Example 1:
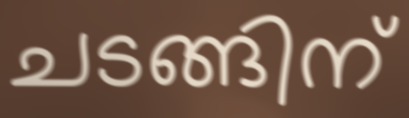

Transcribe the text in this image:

ചടങ്ങിന്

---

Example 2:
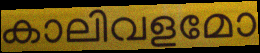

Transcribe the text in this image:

കാലിവളമോ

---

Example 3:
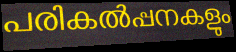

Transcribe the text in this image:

പരികൽപ്പനകളും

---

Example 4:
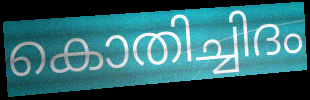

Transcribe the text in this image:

കൊതിച്ചിദം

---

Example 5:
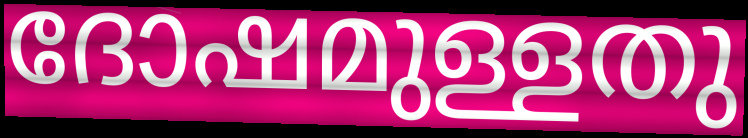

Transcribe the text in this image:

ദോഷമുള്ളതു